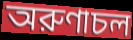
অৰুণাচল